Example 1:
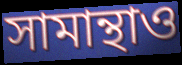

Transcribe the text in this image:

সামান্থাও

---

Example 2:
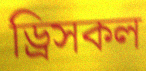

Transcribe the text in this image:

ড্রিসকল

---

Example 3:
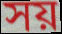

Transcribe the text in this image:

সয়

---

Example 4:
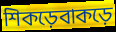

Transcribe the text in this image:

শিকড়েবাকড়ে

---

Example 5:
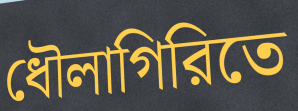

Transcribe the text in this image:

ধৌলাগিরিতে